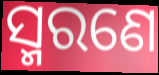
ସ୍ମରଣେ